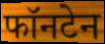
फॉनटेन